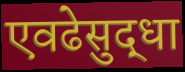
एवढेसुद्धा